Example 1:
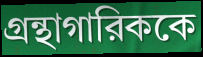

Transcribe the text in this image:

গ্রন্থাগারিককে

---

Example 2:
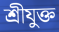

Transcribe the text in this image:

শ্রীযুক্ত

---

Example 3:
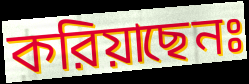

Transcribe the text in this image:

করিয়াছেনঃ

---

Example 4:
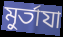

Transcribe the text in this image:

মুর্তাযা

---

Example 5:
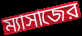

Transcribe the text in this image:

ম্যাসাজের